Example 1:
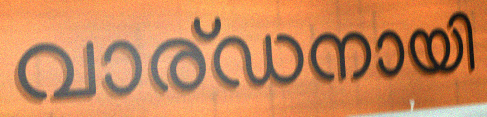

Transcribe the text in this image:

വാര്ഡനായി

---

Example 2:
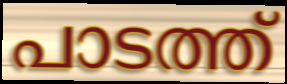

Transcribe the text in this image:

പാടത്ത്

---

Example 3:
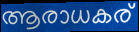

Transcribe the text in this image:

ആരാധകര്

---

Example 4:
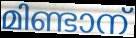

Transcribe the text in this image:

മിണ്ടാന്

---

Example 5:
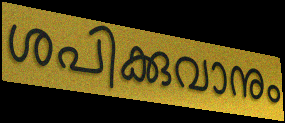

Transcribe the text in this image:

ശപിക്കുവാനും